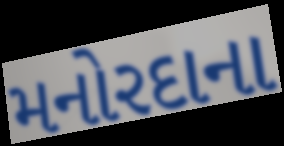
મનોરદાના